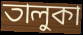
তালুকা